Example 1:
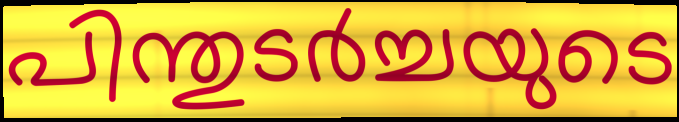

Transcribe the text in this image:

പിന്തുടർച്ചയുടെ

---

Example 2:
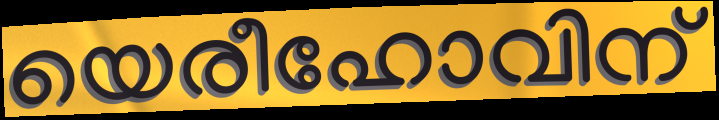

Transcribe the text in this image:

യെരീഹോവിന്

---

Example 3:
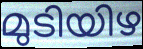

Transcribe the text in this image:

മുടിയിഴ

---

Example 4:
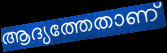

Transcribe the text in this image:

ആദ്യത്തേതാണ്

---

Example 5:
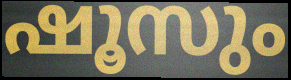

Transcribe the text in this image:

ഷൂസും